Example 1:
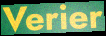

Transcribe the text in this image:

Verier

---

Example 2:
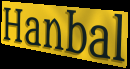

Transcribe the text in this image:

Hanbal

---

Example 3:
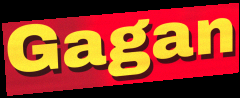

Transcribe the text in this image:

Gagan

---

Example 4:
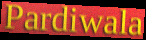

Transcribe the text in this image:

Pardiwala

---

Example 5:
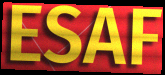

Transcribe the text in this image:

ESAF